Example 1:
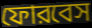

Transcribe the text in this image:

ফোরবেস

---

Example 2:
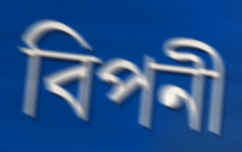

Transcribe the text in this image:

বিপনী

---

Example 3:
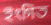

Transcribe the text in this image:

ইংগিত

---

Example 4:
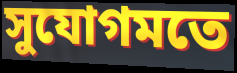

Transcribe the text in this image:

সুযোগমতে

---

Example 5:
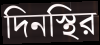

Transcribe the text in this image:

দিনস্থির